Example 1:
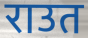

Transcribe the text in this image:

राउत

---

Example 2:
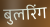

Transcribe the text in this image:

बुलरिंग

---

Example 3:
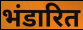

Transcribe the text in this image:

भंडारित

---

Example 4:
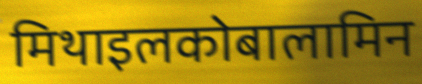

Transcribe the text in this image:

मिथाइलकोबालामिन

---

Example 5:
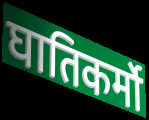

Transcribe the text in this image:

घातिकर्मो